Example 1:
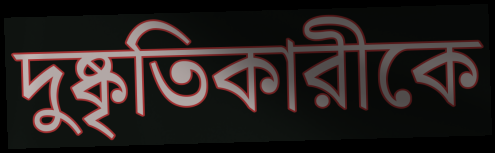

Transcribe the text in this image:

দুষ্কৃতিকারীকে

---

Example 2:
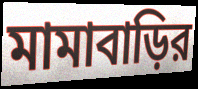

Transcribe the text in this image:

মামাবাড়ির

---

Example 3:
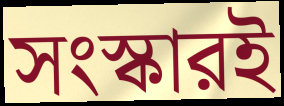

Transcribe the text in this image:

সংস্কারই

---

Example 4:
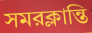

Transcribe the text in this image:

সমরক্লান্তি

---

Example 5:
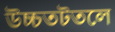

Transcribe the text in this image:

উচ্চতটতলে